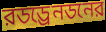
রডড্রেনডনের